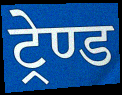
ट्रेण्ड